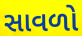
સાવળો